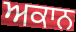
ਅਕਾਨ